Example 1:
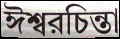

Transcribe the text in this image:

ঈশ্বরচিন্তা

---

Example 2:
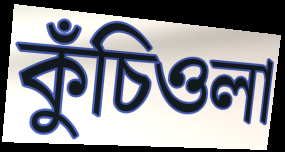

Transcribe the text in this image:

কুঁচিওলা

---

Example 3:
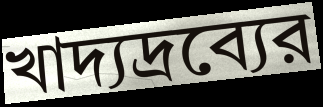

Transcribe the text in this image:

খাদ্যদ্রব্যের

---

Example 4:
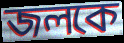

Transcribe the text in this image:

জলকে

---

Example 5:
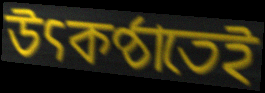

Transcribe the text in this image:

উৎকণ্ঠাতেই